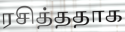
ரசித்ததாக